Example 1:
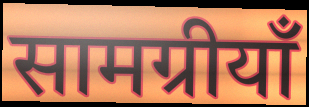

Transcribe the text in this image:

सामग्रीयाँ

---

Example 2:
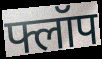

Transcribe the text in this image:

फ्लॉप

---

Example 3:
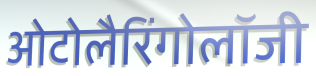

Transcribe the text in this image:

ओटोलैरिंगोलॉजी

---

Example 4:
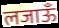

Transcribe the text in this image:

लजाऊँ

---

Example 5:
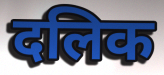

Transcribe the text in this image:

दलिक